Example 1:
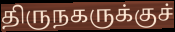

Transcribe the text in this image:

திருநகருக்குச்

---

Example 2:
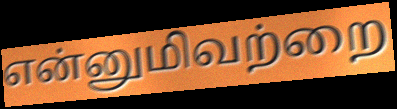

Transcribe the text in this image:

என்னுமிவற்றை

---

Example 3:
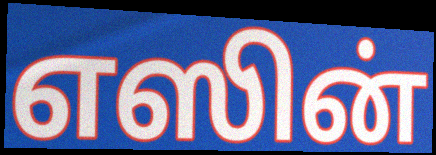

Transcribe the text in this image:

எஸின்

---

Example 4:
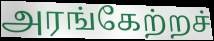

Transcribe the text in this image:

அரங்கேற்றச்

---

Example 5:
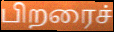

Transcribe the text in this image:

பிறரைச்